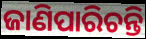
ଜାଣିପାରିଚନ୍ତି